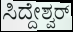
ಸಿದ್ದೇಶ್ವರ್